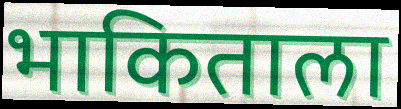
भाकिताला